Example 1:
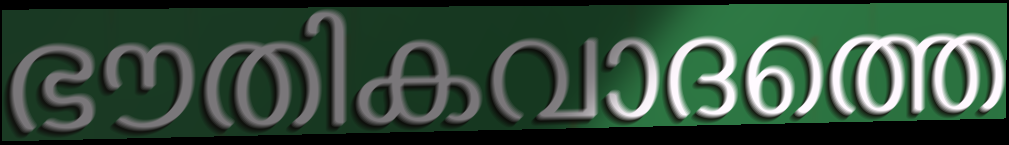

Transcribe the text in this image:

ഭൗതികവാദത്തെ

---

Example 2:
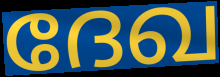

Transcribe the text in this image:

ദേഖ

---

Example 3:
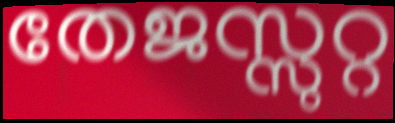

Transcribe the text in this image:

തേജസ്സുറ്റ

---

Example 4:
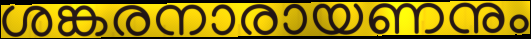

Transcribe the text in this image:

ശങ്കരനാരായണനും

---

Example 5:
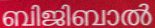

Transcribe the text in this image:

ബിജിബാൽ